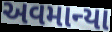
અવમાન્યા